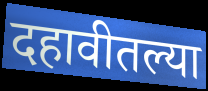
दहावीतल्या